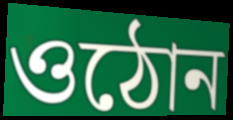
ওঠোন